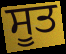
ਸੂਤ